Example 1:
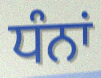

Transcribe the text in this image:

ਧੰਨਾਂ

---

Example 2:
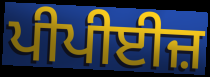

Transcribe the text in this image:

ਪੀਪੀਈਜ਼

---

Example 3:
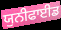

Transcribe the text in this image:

ਯੁਨੀਫਾਈਡ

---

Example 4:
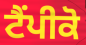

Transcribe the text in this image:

ਟੈਂਪੀਕੋ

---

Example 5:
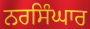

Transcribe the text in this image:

ਨਰਸਿੰਘਾਰ